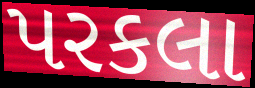
પરકલા